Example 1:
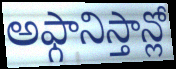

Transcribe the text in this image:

అఫ్గానిస్తాన్లో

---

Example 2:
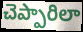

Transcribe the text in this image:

చెప్పారిలా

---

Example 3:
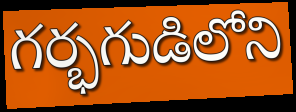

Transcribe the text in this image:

గర్భగుడిలోని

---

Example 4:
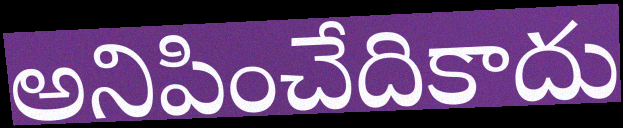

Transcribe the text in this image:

అనిపించేదికాదు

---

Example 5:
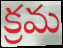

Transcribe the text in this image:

క్రమ